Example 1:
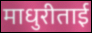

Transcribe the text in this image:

माधुरीताई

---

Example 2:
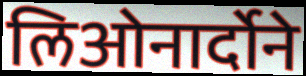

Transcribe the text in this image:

लिओनार्दोने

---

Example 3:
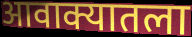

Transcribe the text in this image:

आवाक्यातला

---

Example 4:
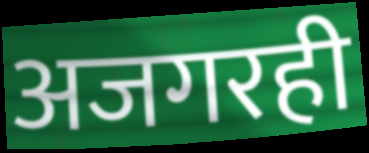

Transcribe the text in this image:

अजगरही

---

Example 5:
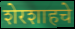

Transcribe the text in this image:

शेरशाहचे